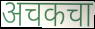
अचकचा